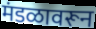
मंडळावरून